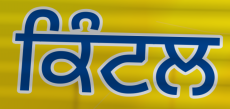
ਕਿੰਟਲ